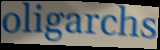
oligarchs